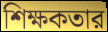
শিক্ষকতার